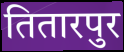
तितारपुर